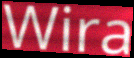
Wira